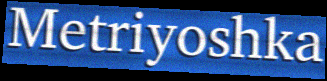
Metriyoshka